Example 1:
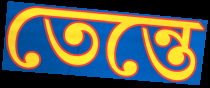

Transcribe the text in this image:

তেন্তে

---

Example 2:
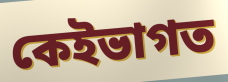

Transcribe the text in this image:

কেইভাগত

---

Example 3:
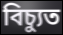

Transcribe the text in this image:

বিচ্যুত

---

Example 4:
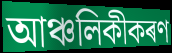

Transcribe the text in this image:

আঞ্চলিকীকৰণ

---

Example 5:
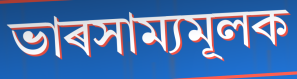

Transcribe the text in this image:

ভাৰসাম্যমূলক